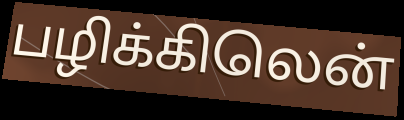
பழிக்கிலென்